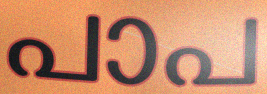
പാപ